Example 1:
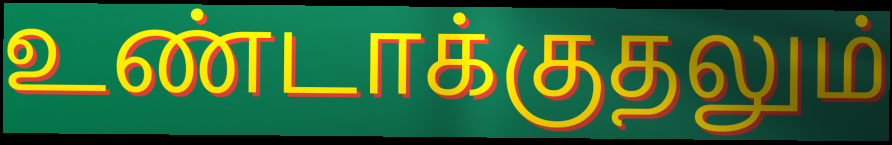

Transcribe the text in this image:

உண்டாக்குதலும்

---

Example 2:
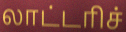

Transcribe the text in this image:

லாட்டரிச்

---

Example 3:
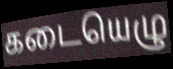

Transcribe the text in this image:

கடையெழு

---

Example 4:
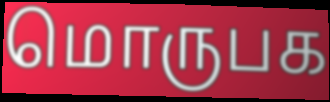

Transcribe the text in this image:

மொருபக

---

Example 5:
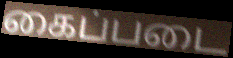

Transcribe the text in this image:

கைப்படை